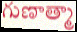
గుణాత్మా